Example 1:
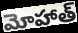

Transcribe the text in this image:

మోహాత్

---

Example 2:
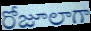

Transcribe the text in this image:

రోజూలాగా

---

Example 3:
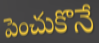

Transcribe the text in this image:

పెంచుకొనే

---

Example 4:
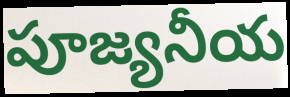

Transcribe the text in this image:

పూజ్యనీయ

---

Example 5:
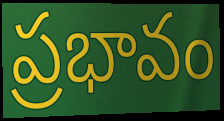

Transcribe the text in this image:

ప్రభావం